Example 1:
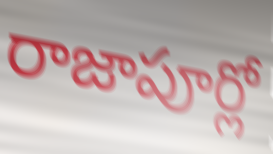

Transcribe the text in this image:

రాజాపూర్లో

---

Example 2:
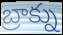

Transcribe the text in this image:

బ్రాక్ను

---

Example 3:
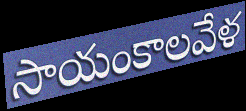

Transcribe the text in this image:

సాయంకాలవేళ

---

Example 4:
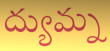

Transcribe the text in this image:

ద్యుమ్న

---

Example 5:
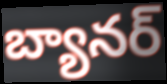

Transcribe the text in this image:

బ్యానర్